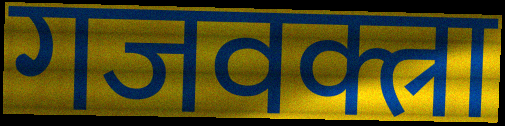
गजवक्त्रा